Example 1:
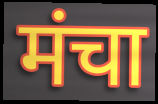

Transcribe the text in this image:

मंचा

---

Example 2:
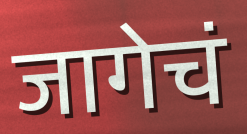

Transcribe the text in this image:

जागेचं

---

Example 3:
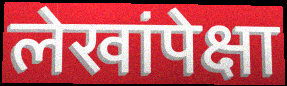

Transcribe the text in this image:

लेखांपेक्षा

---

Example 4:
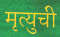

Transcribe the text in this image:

मृत्युची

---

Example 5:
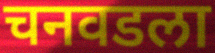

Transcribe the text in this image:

चनवडला